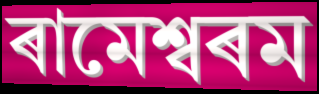
ৰামেশ্বৰম